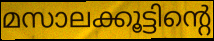
മസാലക്കൂട്ടിന്റെ